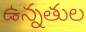
ఉన్నతుల